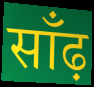
साँढ़